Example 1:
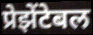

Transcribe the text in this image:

प्रेझेंटेबल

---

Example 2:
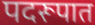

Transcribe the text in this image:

पदरूपात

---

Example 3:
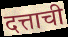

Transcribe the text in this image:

दत्ताची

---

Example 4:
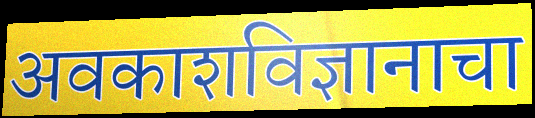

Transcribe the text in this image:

अवकाशविज्ञानाचा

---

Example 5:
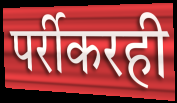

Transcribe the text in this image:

पर्रीकरही